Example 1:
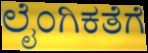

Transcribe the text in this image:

ಲೈಂಗಿಕತೆಗೆ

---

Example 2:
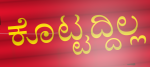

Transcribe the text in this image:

ಕೊಟ್ಟದ್ದಿಲ್ಲ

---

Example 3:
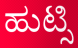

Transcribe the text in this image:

ಹುಟ್ಸಿ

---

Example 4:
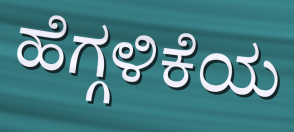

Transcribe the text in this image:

ಹೆಗ್ಗಳಿಕೆಯ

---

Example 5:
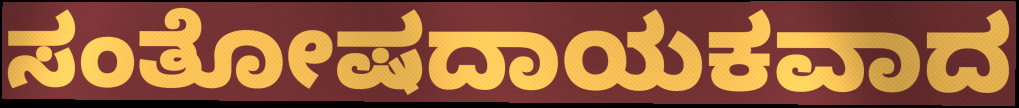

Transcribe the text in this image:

ಸಂತೋಷದಾಯಕವಾದ